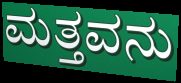
ಮತ್ತವನು